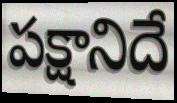
పక్షానిదే